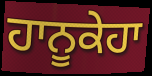
ਹਾਨੂਕੇਹਾ